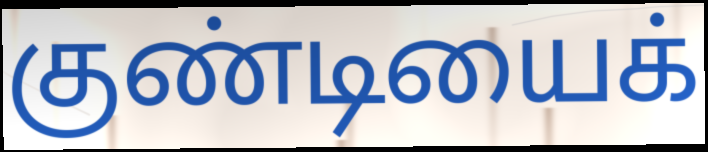
குண்டியைக்